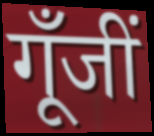
गूँजीं